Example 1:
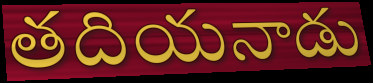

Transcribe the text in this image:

తదియనాడు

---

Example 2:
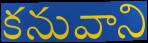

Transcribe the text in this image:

కనువాని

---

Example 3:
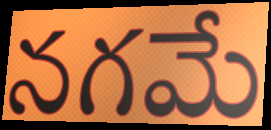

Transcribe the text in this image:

నగమే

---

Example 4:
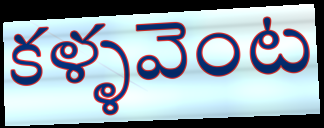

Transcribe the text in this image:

కళ్ళవెంట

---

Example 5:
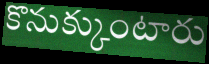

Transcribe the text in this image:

కొనుక్కుంటారు